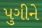
પુગીને